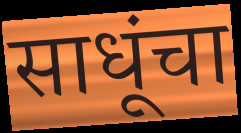
साधूंचा